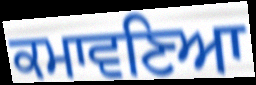
ਕਮਾਵਣਿਆ